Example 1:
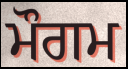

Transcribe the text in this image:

ਮੌਗਮ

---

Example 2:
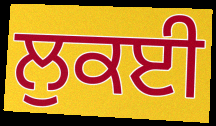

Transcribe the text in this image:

ਲੁਕਈ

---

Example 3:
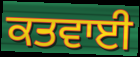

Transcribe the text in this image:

ਕਤਵਾਈ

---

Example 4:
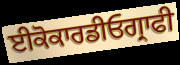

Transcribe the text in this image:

ਈਕੋਕਾਰਡੀਓਗ੍ਰਾਫੀ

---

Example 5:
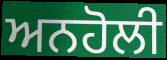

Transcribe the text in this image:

ਅਨਹੋਲੀ